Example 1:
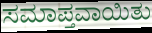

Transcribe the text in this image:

ಸಮಾಪ್ತವಾಯಿತು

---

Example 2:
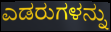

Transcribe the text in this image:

ಎಡರುಗಳನ್ನು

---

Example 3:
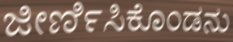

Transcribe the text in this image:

ಜೀರ್ಣಿಸಿಕೊಂಡನು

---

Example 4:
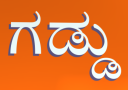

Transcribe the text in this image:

ಗಡ್ಡು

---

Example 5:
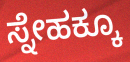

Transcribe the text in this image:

ಸ್ನೇಹಕ್ಕೂ